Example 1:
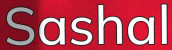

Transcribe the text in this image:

Sashal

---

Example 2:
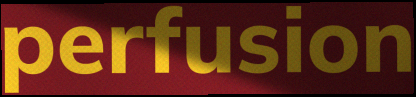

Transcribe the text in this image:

perfusion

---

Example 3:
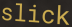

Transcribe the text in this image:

slick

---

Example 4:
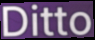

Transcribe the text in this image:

Ditto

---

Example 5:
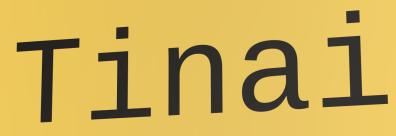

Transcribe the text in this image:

Tinai